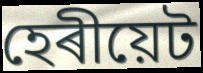
হেৰীয়েট